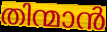
തിന്മാൻ